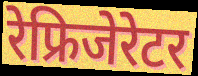
रेफ्रिजेरेटर